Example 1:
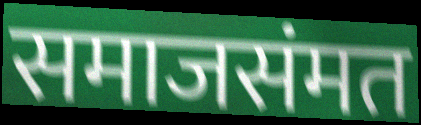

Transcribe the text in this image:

समाजसंमत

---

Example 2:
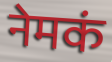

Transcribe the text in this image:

नेमकं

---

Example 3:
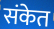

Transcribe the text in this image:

संकेत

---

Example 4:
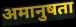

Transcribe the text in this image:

अमानुषता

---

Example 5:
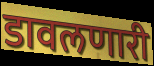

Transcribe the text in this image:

डावलणारी